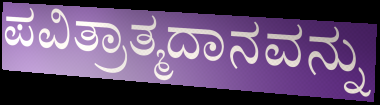
ಪವಿತ್ರಾತ್ಮದಾನವನ್ನು